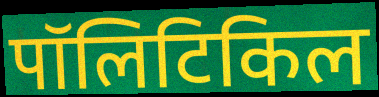
पॉलिटिकिल